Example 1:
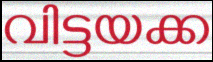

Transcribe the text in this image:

വിട്ടയക്ക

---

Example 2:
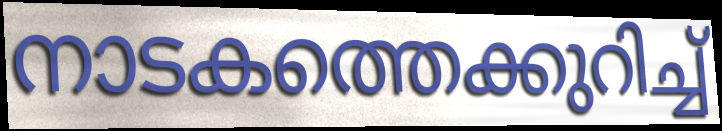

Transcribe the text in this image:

നാടകത്തെക്കുറിച്ച്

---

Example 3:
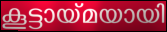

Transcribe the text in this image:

കൂട്ടായ്മയായി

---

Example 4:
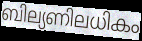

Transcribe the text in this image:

ബില്യണിലധികം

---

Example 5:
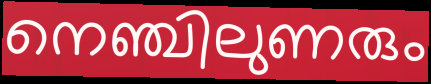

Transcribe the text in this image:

നെഞ്ചിലുണരും